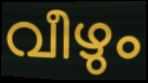
വീഴും